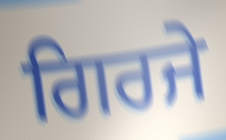
ਗਿਰਜੇ